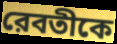
রেবতীকে